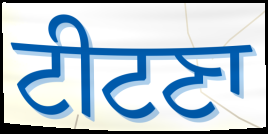
ਟੀਟਣਾ